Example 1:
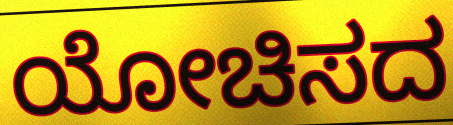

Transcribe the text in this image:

ಯೋಚಿಸದ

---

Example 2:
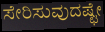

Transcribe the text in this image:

ಸೇರಿಸುವುದಷ್ಟೇ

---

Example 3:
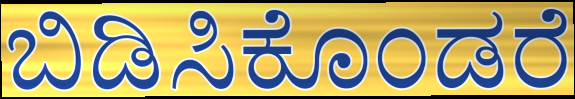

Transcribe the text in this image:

ಬಿಡಿಸಿಕೊಂಡರೆ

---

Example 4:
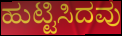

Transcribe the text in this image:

ಹುಟ್ಟಿಸಿದವು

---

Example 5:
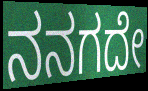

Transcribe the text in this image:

ನನಗದೇ